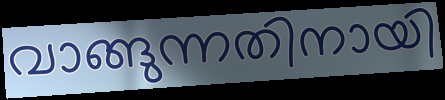
വാങ്ങുന്നതിനായി